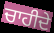
ਚਾਹੀਦੇ